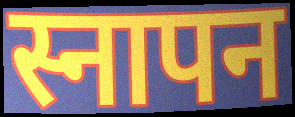
स्नापन